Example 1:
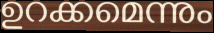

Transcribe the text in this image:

ഉറക്കമെന്നും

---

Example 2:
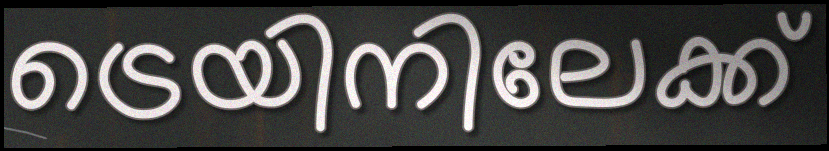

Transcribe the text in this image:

ട്രെയിനിലേക്ക്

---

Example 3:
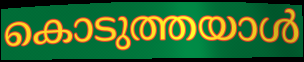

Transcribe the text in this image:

കൊടുത്തയാൾ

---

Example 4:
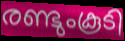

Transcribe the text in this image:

രണ്ടുംകൂടി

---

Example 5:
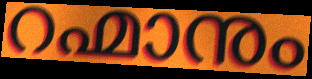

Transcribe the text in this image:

റഹ്മാനും